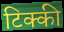
टिक्की